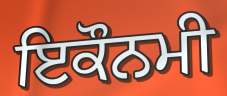
ਇਕੌਨਮੀ